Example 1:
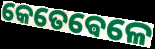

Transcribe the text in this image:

କେତେଵେଳେ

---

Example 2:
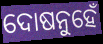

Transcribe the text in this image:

ଦୋଷନୁହେଁ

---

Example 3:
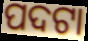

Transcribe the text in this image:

ପଦଟା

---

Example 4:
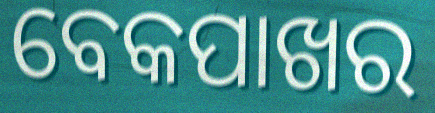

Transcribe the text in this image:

ବେକପାଖର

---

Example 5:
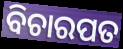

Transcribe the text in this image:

ବିଚାରପତ